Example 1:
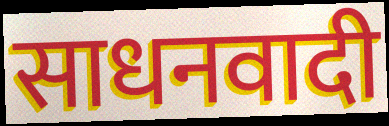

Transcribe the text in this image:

साधनवादी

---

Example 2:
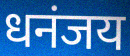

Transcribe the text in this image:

धनंजय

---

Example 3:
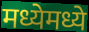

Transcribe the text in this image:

मध्येमध्ये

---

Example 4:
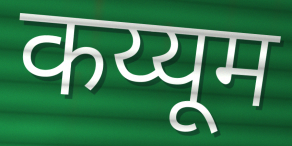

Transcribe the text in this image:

कय्यूम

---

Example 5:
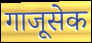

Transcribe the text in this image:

गाजूसेक